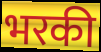
भरकी